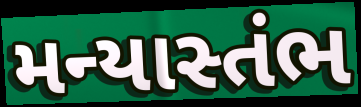
મન્યાસ્તંભ